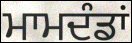
ਮਾਮਦੰਡਾਂ